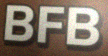
BFB